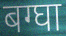
बग्घा